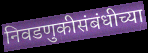
निवडणुकीसंबंधीच्या